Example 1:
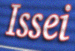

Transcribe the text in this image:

Issei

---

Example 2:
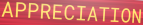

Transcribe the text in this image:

APPRECIATION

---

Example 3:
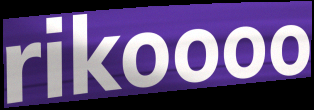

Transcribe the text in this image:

rikoooo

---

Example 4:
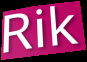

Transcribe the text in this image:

Rik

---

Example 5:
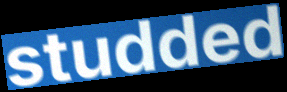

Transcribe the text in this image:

studded